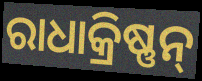
ରାଧାକ୍ରିଷ୍ଣନ୍